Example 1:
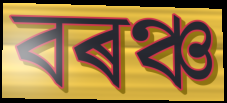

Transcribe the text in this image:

বৰঞ্চ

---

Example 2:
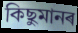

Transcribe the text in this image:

কিছুমানৰ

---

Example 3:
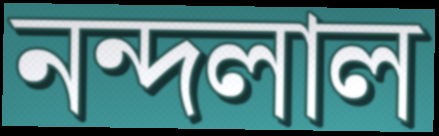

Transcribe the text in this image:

নন্দলাল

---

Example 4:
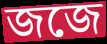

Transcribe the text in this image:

জজে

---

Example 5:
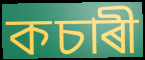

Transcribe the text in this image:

কচাৰী